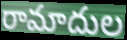
రామాదుల